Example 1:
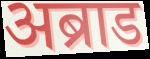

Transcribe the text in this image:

अब्राड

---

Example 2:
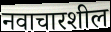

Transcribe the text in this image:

नवाचारशील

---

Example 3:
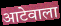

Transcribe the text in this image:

आटेवाला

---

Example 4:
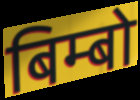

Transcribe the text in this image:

बिम्बो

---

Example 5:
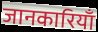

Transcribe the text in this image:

जानकारियाँ